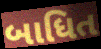
બાધિત